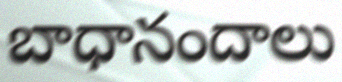
బాధానందాలు